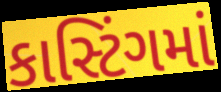
કાસ્ટિંગમાં